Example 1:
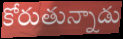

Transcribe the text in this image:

కోరుతున్నాడు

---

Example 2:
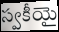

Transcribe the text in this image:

స్వకీయై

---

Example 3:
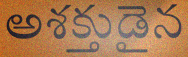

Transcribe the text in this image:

అశక్తుడైన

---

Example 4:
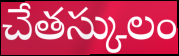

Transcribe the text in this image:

చేతస్కులం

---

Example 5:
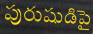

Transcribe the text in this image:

పురుషుడిపై